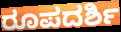
ರೂಪದರ್ಶಿ